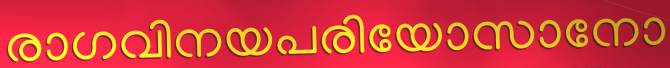
രാഗവിനയപരിയോസാനോ